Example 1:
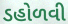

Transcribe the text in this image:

ડહોળવી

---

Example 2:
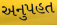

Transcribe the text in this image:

અનુપહત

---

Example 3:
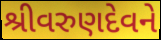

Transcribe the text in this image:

શ્રીવરુણદેવને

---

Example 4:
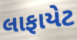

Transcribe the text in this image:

લાફાયેટ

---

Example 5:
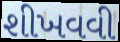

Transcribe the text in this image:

શીખવવી